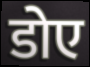
डोए